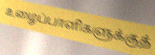
உழைப்பாளிகளுக்குத்